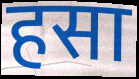
हसा